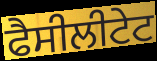
ਫੈਸੀਲੀਟੇਟ